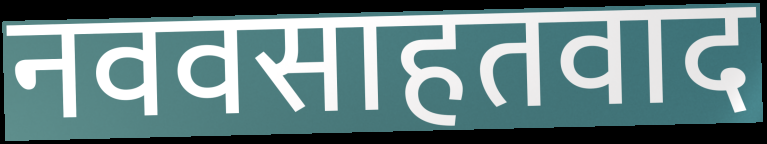
नववसाहतवाद